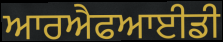
ਆਰਐਫਆਈਡੀ